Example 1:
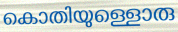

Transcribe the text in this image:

കൊതിയുള്ളൊരു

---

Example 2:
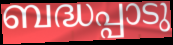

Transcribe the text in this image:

ബദ്ധപ്പാടു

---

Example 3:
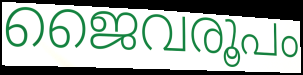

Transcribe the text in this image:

ജൈവരൂപം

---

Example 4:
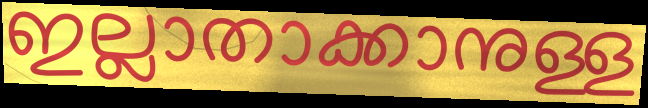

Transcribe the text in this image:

ഇല്ലാതാക്കാനുള്ള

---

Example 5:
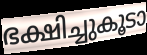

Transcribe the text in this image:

ഭക്ഷിച്ചുകൂടാ